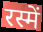
रस्‍में